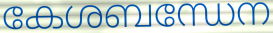
കേശബന്ധേന